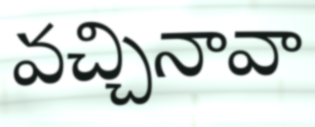
వచ్చినావా